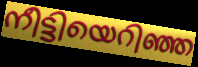
നീട്ടിയെറിഞ്ഞ